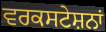
ਵਰਕਸਟੇਸ਼ਨਾਂ